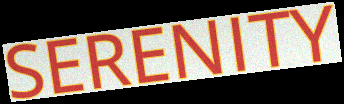
SERENITY